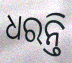
ଧରନ୍ତି